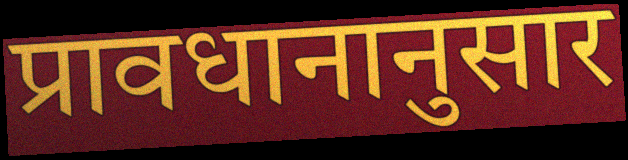
प्रावधानानुसार